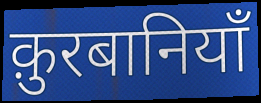
क़ुरबानियाँ